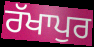
ਰੱਖਾਪੁਰ